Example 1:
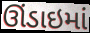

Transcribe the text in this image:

ઊંડાઇમાં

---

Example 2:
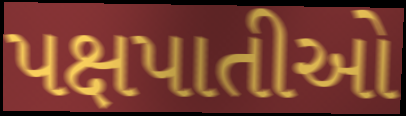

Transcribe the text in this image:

પક્ષપાતીઓ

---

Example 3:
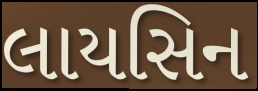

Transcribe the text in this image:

લાયસિન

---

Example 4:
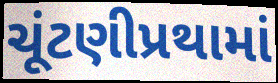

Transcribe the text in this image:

ચૂંટણીપ્રથામાં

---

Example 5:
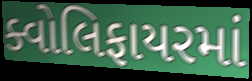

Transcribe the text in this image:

ક્વોલિફાયરમાં